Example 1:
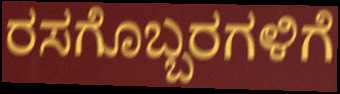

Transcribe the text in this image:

ರಸಗೊಬ್ಬರಗಳಿಗೆ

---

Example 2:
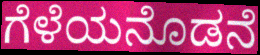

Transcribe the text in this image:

ಗೆಳೆಯನೊಡನೆ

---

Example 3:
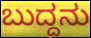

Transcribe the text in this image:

ಬುದ್ದನು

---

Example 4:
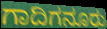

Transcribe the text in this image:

ಗಾದಿಗನೂರು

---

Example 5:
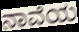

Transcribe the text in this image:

ನಾವೆಯ